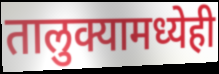
तालुक्यामध्येही